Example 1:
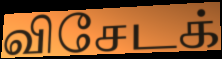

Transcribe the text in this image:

விசேடக்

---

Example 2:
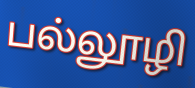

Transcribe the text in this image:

பல்லூழி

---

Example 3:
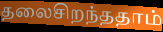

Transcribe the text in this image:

தலைசிறந்ததாம்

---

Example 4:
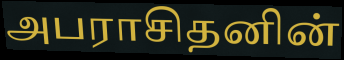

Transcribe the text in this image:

அபராசிதனின்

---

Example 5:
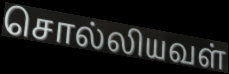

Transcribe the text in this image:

சொல்லியவள்